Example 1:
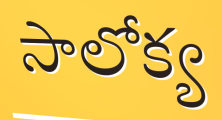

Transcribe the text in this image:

సాలోక్య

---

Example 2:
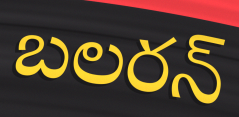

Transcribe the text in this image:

బలరన్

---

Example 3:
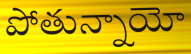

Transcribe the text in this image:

పోతున్నాయో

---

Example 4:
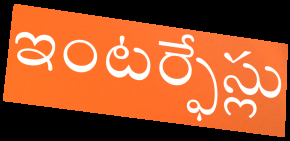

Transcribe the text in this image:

ఇంటర్ఫేస్లు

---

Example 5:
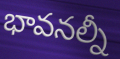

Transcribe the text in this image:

భావనల్నీ